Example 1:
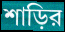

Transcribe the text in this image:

শাড়ির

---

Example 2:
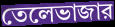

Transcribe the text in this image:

তেলেভাজার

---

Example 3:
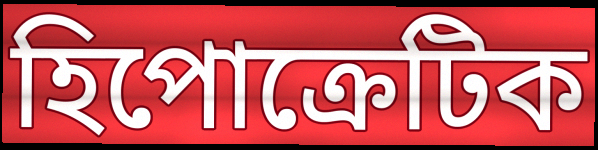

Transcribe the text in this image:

হিপোক্রেটিক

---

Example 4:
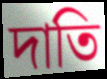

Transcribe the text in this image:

দাতি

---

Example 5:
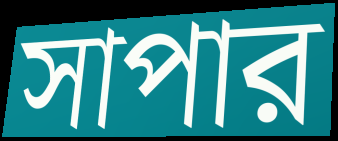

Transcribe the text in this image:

সাপার